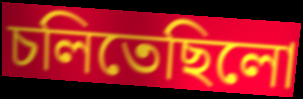
চলিতেছিলো